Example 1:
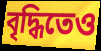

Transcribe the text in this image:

বৃদ্ধিতেও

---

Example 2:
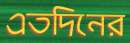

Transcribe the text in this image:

এতদিনের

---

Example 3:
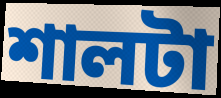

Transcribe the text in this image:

শালটা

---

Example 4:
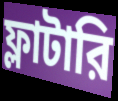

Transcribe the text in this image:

ফ্লাটারি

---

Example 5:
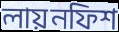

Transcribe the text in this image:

লায়নফিশ